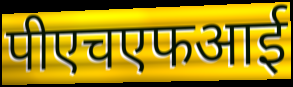
पीएचएफआई